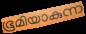
ഭൂമിയാകുന്ന